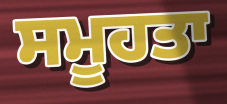
ਸਮੂਹਤਾ